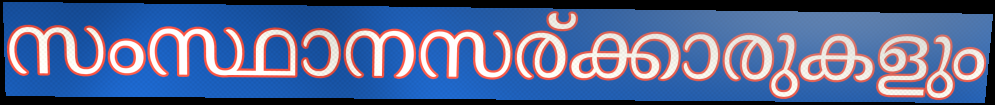
സംസ്ഥാനസര്ക്കാരുകളും